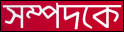
সম্পদকে